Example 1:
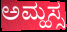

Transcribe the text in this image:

ಅಮ್ಹಸ್ಸ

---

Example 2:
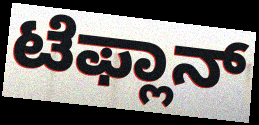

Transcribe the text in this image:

ಟೆಫ್ಲಾನ್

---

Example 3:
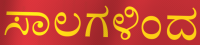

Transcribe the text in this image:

ಸಾಲಗಳಿಂದ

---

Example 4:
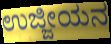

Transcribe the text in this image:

ಉಜ್ಜೀಯನ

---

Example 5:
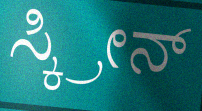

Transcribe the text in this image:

ಸ್ಕ್ರೀನ್